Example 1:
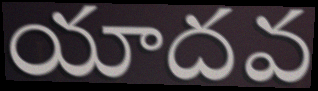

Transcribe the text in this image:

యాదవ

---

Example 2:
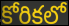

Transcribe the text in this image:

కోరికలో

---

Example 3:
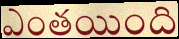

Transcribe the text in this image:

ఎంతయింది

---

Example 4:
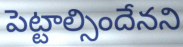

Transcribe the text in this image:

పెట్టాల్సిందేనని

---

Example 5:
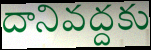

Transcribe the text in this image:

దానివద్దకు